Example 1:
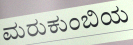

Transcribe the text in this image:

ಮರುಕುಂಬಿಯ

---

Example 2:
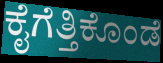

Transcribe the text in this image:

ಕೈಗೆತ್ತಿಕೊಂಡೆ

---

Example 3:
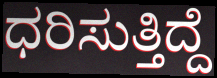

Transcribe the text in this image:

ಧರಿಸುತ್ತಿದ್ದೆ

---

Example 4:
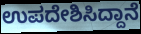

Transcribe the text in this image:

ಉಪದೇಶಿಸಿದ್ದಾನೆ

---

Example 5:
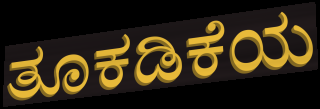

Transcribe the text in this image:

ತೂಕಡಿಕೆಯ